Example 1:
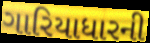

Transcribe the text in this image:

ગારિયાધારની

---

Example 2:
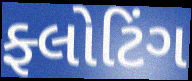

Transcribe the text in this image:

ફ્લોટિંગ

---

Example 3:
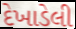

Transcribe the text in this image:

દેખાડેલી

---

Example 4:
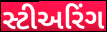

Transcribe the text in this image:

સ્ટીઅરિંગ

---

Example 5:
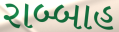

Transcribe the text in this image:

રાબ્બાહ